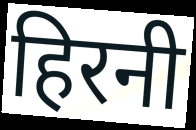
हिरनी